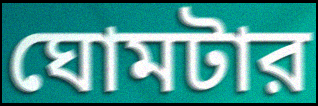
ঘোমটার